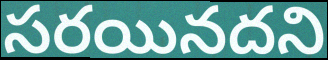
సరయినదని